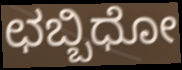
ಛಬ್ಬಿಧೋ